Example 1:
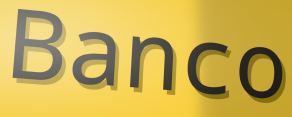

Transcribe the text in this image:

Banco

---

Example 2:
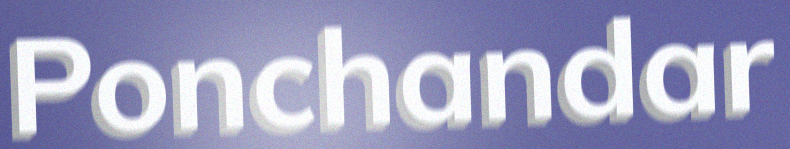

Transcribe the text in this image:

Ponchandar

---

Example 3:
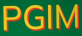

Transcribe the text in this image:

PGIM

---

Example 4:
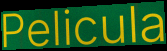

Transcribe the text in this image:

Pelicula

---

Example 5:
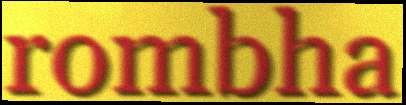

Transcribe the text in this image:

rombha